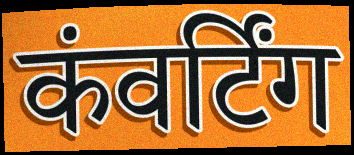
कंवर्टिंग